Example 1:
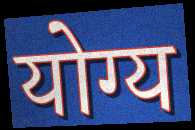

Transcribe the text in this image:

योग्य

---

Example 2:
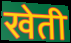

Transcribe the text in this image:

खेती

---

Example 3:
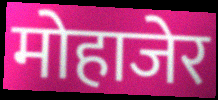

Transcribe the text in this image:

मोहाजेर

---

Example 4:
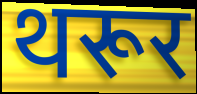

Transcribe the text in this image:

थरूर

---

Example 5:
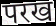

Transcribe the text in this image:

परख